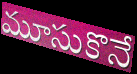
మూసుకొనే